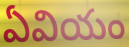
ఏవియం